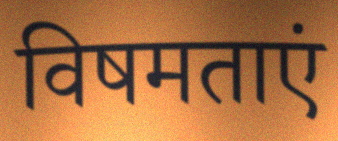
विषमताएं